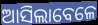
ଆସିଲାବେଳେ